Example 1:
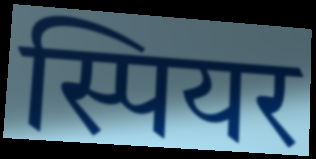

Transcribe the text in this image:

स्पियर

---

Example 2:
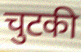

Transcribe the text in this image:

चुटकी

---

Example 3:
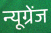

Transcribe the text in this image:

न्यूग्रेंज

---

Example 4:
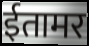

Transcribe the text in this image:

ईतामर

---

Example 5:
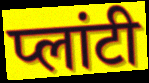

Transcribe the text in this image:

प्लांटी